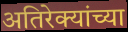
अतिरेक्‍यांच्या